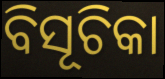
ବିସୂଚିକା